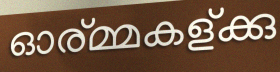
ഓര്മ്മകള്ക്കു